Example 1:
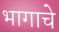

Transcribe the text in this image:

भागाचे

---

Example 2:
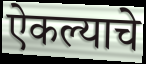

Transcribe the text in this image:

ऐकल्याचे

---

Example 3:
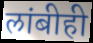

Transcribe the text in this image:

लांबीही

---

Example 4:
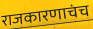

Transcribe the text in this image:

राजकारणाचंच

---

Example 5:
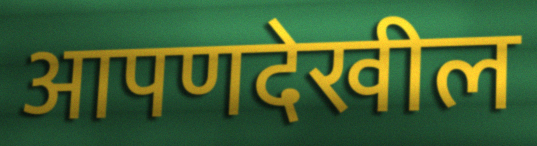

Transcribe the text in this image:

आपणदेखील